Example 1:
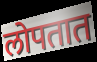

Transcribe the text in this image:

लोपतात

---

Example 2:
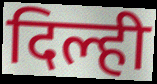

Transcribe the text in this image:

दिल्ही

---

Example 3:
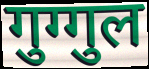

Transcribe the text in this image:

गुग्गुल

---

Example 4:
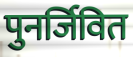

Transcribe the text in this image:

पुनर्जिवित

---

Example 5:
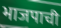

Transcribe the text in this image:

भाजपाची